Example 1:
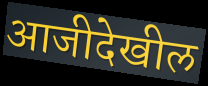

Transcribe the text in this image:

आजीदेखील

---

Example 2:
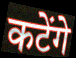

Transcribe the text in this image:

कटेंगे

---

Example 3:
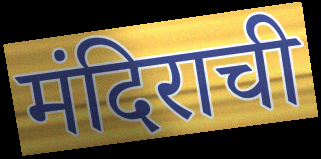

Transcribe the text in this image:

मंदिराची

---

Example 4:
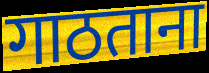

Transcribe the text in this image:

गाठताना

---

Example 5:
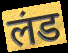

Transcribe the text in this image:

लंड